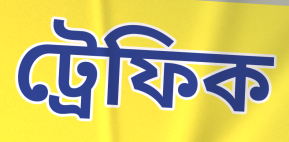
ট্ৰেফিক